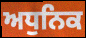
ਅਧੁਨਿਕ